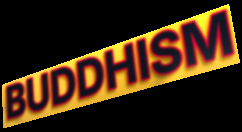
BUDDHISM